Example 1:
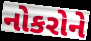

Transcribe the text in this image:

નોકરોને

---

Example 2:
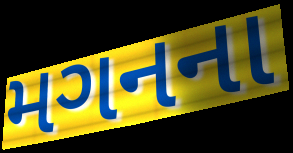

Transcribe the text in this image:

મગનના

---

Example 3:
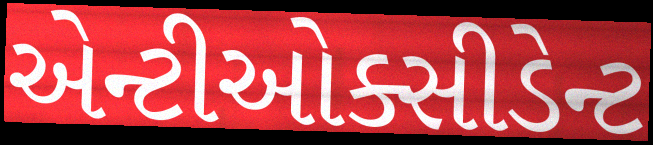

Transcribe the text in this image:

એન્ટીઓક્સીડેન્ટ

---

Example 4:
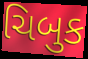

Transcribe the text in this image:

ચિબુક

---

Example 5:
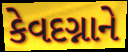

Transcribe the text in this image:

કેવદગ્નાને